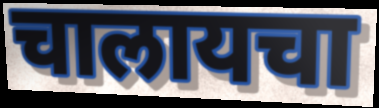
चालायचा